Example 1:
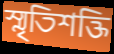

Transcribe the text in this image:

স্মৃতিশক্তি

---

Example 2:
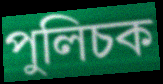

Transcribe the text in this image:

পুলিচক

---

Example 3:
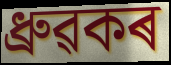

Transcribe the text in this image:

ধ্ৰুৱকৰ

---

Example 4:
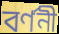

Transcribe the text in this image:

বৰ্ণনী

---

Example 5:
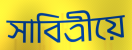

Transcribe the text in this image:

সাবিত্ৰীয়ে